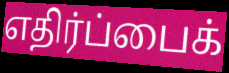
எதிர்ப்பைக்